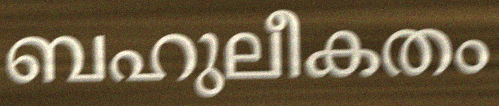
ബഹുലീകതം